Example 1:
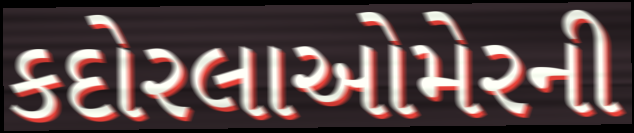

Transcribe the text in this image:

કદોરલાઓમેરની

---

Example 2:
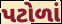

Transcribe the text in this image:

પટોળાં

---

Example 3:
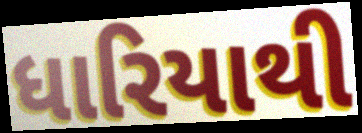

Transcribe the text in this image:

ધારિયાથી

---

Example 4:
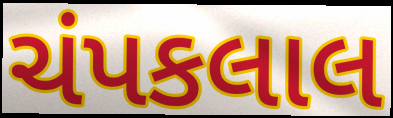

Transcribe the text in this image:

ચંપકલાલ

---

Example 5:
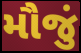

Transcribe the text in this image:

મૌજું